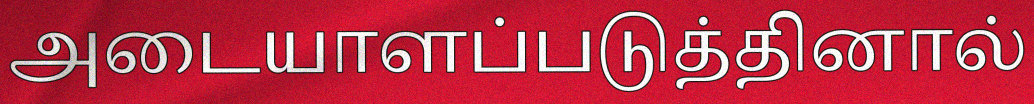
அடையாளப்படுத்தினால்